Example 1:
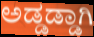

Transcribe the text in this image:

ಅಡ್ಡಡ್ಡಾಗಿ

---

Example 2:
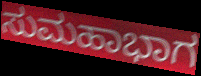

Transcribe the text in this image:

ಸುಮಹಾಭಾಗ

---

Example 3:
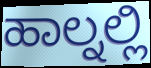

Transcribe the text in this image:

ಹಾಲ್ನಲ್ಲಿ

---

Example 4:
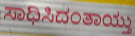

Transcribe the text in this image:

ಸಾಧಿಸಿದಂತಾಯ್ತು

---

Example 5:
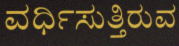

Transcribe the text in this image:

ವರ್ಧಿಸುತ್ತಿರುವ